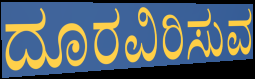
ದೂರವಿರಿಸುವ